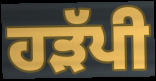
ਹੜੱਪੀ